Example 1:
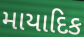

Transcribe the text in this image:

માયાદિક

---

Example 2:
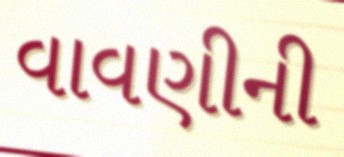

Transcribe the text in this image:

વાવણીની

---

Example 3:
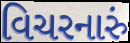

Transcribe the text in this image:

વિચરનારું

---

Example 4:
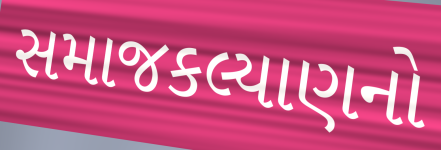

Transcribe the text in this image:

સમાજકલ્યાણનો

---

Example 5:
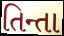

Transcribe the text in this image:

તિન્તા